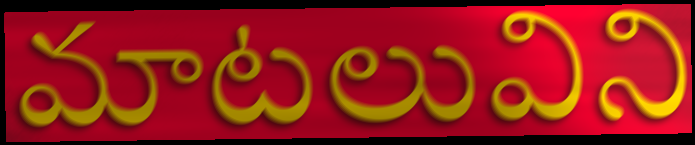
మాటలువిని